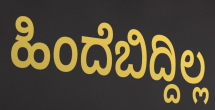
ಹಿಂದೆಬಿದ್ದಿಲ್ಲ